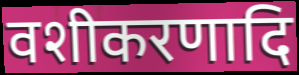
वशीकरणादि